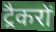
ट्रैकरों